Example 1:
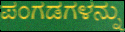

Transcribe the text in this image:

ಪಂಗಡಗಳನ್ನು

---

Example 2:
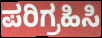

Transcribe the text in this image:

ಪರಿಗ್ರಹಿಸಿ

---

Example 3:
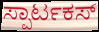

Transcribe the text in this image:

ಸ್ಪಾರ್ಟಕಸ್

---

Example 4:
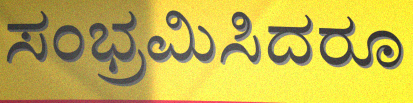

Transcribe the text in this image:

ಸಂಭ್ರಮಿಸಿದರೂ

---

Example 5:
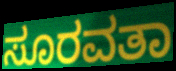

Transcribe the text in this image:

ಸೂರವತಾ